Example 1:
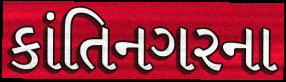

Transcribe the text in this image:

કાંતિનગરના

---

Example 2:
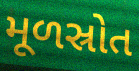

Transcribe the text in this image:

મૂળસ્રોત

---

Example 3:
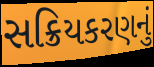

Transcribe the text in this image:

સક્રિયકરણનું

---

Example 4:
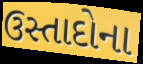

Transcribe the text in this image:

ઉસ્તાદોના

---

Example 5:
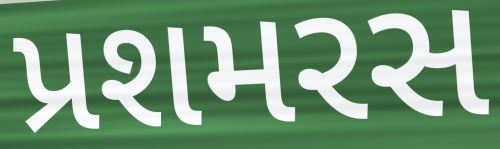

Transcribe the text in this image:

પ્રશમરસ